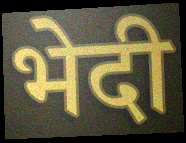
भेदी